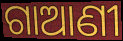
ଗାଆଣୀ